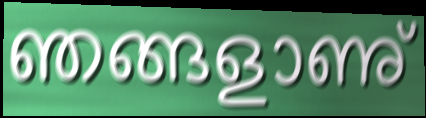
ഞങ്ങളാണു്